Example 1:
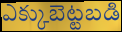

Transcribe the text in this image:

ఎక్కుబెట్టబడి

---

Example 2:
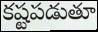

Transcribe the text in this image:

కష్టపడుతూ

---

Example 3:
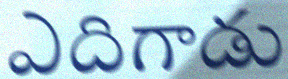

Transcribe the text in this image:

ఎదిగాడు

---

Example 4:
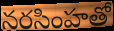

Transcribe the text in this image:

నరసింహతో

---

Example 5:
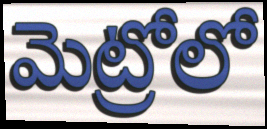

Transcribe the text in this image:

మెట్రోలో